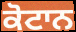
ਕੋਟਾਨ